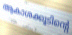
ആകാശക്കൂടിന്റെ